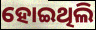
ହୋଇଥିଲି